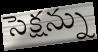
సెక్షన్ను